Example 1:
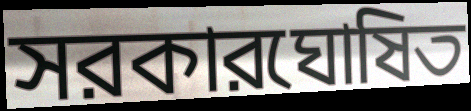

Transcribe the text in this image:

সরকারঘোষিত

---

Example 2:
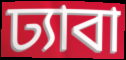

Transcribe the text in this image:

ঢ্যাবা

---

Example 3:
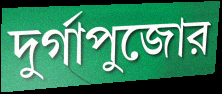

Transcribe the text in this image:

দুর্গাপুজোর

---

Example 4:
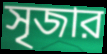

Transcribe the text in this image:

সৃজার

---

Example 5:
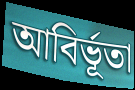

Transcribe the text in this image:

আবির্ভূতা